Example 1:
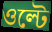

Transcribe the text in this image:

ওল্টে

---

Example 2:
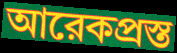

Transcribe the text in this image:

আরেকপ্রস্ত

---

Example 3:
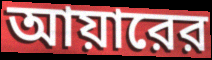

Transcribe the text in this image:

আয়ারের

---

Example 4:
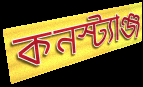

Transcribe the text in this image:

কনস্ট্যাঞ্জ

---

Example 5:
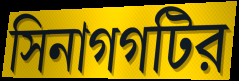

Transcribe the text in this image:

সিনাগগটির